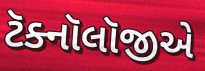
ટૅક્નૉલૉજીએ